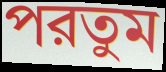
পরতুম